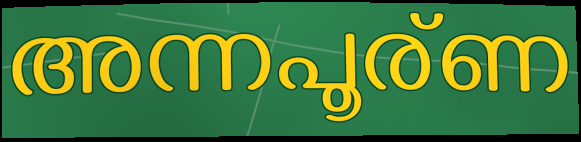
അന്നപൂര്ണ